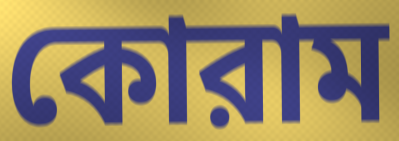
কোরাম